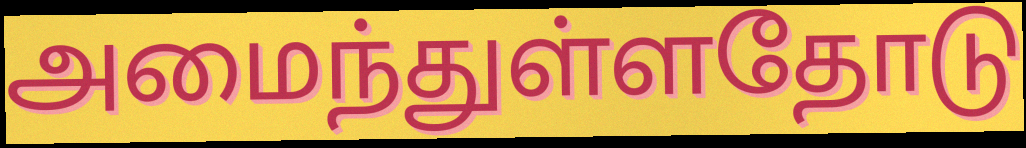
அமைந்துள்ளதோடு